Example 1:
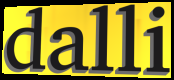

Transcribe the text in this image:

dalli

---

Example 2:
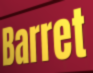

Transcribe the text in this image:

Barret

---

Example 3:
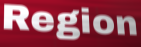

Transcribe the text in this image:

Region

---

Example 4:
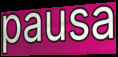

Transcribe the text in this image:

pausa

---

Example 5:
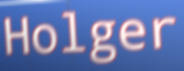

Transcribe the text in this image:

Holger